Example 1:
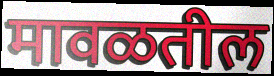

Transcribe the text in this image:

मावळतील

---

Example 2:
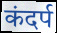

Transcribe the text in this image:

कंदर्प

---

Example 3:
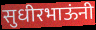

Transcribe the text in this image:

सुधीरभाऊंनी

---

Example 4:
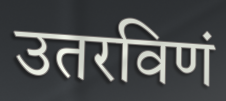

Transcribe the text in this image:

उतरविणं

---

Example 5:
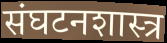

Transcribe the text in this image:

संघटनशास्त्र